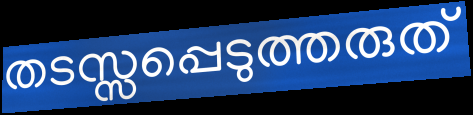
തടസ്സപ്പെടുത്തരുത്